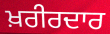
ਖ਼ਰੀਰਦਾਰ